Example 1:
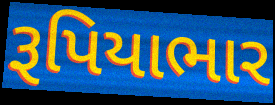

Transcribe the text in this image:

રૂપિયાભાર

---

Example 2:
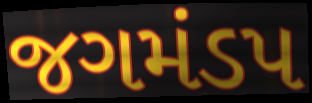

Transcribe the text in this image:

જગમંડપ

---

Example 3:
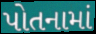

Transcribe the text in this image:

પોતનામાં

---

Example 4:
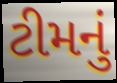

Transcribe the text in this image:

ટીમનું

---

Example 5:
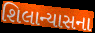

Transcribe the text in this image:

શિલાન્યાસના